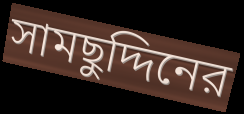
সামছুদ্দিনের